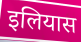
इलियास